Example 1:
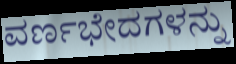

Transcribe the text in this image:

ವರ್ಣಭೇದಗಳನ್ನು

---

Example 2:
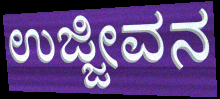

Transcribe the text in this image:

ಉಜ್ಜೀವನ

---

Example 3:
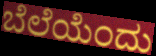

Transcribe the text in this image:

ಬೆಲೆಯೆಂದು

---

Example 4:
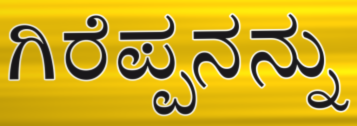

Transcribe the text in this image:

ಗಿರೆಪ್ಪನನ್ನು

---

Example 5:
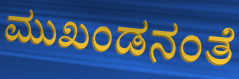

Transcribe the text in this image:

ಮುಖಂಡನಂತೆ